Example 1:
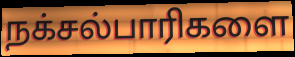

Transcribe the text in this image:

நக்சல்பாரிகளை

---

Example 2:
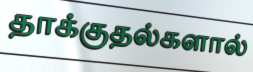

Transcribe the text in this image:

தாக்குதல்களால்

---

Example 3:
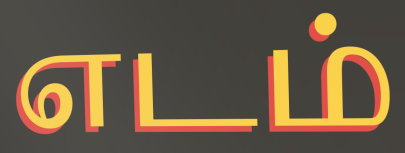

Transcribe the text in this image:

எடம்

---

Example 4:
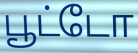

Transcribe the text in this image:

பூட்டோ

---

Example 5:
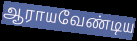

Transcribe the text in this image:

ஆராயவேண்டிய